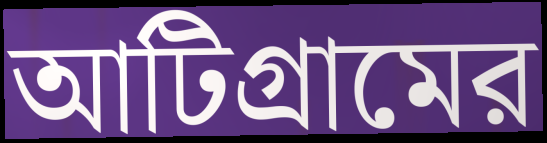
আটিগ্রামের